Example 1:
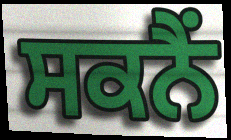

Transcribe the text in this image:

ਸਕਨੈਂ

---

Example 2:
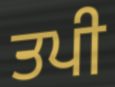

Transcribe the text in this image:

ਤਪੀ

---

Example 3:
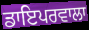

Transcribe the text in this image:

ਡਾਇਪਰਵਾਲਾ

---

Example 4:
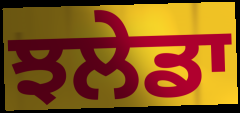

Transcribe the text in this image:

ਝਲੇਡਾ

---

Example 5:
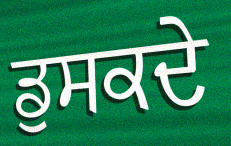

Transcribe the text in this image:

ਡੁਸਕਦੇ